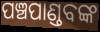
ପଞ୍ଚପାଣ୍ଡବଙ୍କ